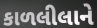
કાળલીલાને